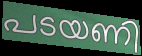
പടയണി